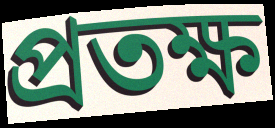
প্রতক্ষ